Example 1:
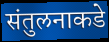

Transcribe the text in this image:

संतुलनाकडे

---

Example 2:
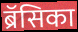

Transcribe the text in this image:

ब्रॅसिका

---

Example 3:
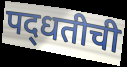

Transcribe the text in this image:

पद्धतीची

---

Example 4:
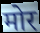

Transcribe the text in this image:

मोर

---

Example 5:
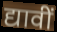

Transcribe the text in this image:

द्यावीं